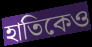
হাতিকেও